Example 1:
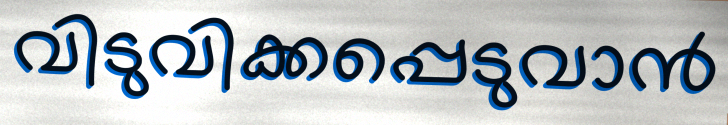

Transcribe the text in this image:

വിടുവിക്കപ്പെടുവാൻ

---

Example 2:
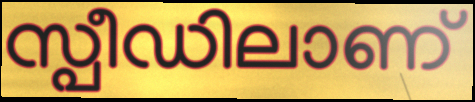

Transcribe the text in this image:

സ്പീഡിലാണ്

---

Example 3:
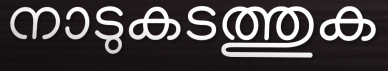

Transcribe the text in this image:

നാടുകടത്തുക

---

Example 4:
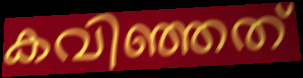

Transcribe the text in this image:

കവിഞ്ഞത്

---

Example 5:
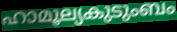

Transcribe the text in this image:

ഹാമൂല്യകുടുംബം